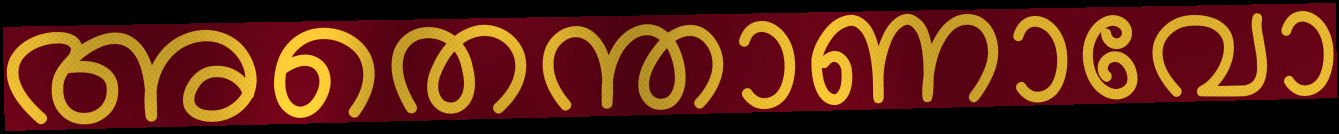
അതെന്താണാവോ